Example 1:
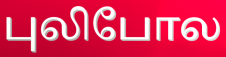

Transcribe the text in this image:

புலிபோல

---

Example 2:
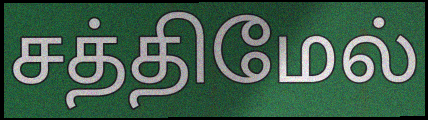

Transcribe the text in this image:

சத்திமேல்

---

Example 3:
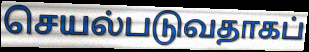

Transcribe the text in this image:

செயல்படுவதாகப்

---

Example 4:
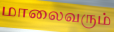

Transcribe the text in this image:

மாலைவரும்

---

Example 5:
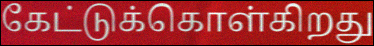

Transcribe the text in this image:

கேட்டுக்கொள்கிறது